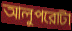
আলুপরোটা